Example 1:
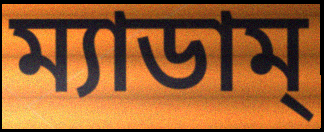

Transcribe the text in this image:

ম্যাডাম্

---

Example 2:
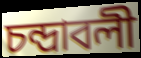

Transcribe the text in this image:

চন্দ্রাবলী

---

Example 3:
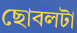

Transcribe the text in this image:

ছোবলটা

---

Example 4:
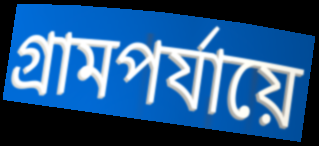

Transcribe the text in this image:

গ্রামপর্যায়ে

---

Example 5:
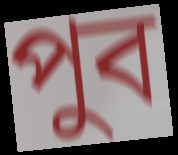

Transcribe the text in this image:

পুব